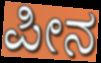
ಪೀನ